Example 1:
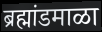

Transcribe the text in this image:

ब्रह्मांडमाळा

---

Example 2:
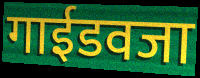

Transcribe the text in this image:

गाईडवजा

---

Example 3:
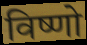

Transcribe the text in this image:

विष्णो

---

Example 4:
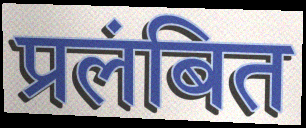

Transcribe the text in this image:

प्रलंबित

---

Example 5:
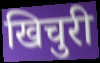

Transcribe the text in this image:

खिचुरी